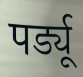
पर्ड्यू